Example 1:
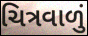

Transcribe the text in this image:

ચિત્રવાળું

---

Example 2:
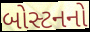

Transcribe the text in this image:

બોસ્ટનનો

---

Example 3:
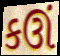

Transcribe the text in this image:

કઊં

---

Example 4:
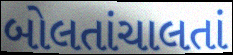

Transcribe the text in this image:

બોલતાંચાલતાં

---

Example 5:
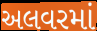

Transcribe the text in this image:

અલવરમાં